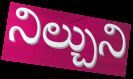
నిల్చుని